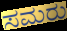
ಸಮರು